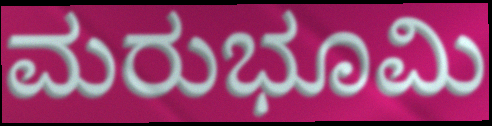
ಮರುಭೂಮಿ